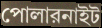
পোলারনাইট